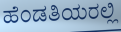
ಹೆಂಡತಿಯರಲ್ಲಿ